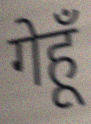
गेहूँ